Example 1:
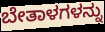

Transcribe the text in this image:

ಬೇತಾಳಗಳನ್ನು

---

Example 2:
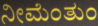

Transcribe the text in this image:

ನೀಮೆಂತುಂ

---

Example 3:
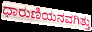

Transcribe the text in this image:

ಧಾರುಣಿಯನವಗಿತ್ತು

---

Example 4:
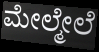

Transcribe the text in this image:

ಮೇಲ್ಮೇಲೆ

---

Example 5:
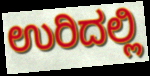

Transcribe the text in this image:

ಉರಿದಲ್ಲಿ